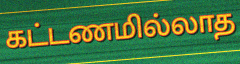
கட்டணமில்லாத